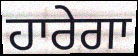
ਹਾਰੇਗਾ